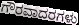
ಗೌರವಾದರಗಳು